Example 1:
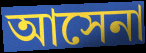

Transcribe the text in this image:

আসেনা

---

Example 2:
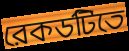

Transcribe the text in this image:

রেকর্ডটিতে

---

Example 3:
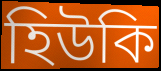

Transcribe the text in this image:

হিউকি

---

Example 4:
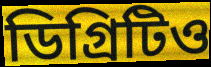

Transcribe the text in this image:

ডিগ্রিটিও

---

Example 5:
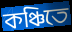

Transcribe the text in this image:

কঞ্চিতে